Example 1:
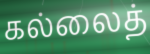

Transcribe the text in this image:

கல்லைத்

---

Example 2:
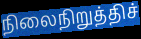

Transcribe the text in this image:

நிலைநிறுத்திச்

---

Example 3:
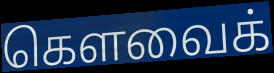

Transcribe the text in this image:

கௌவைக்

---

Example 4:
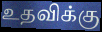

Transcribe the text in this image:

உதவிக்கு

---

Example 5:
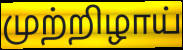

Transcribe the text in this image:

முற்றிழாய்